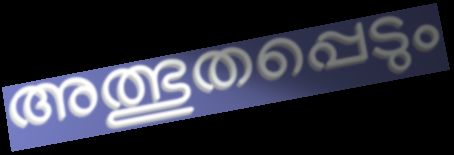
അത്ഭുതപ്പെടും